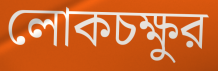
লোকচক্ষুর